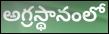
అగ్రస్థానంలో